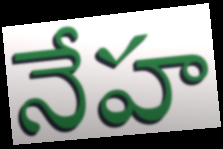
నేహ